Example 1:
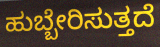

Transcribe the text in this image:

ಹುಬ್ಬೇರಿಸುತ್ತದೆ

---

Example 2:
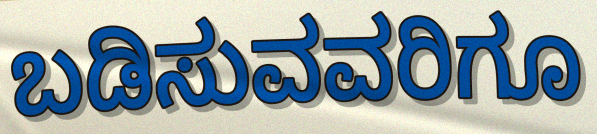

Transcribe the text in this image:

ಬಡಿಸುವವರಿಗೂ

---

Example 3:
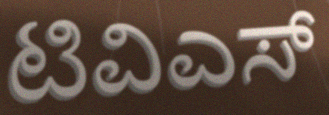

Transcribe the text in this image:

ಟಿವಿಎಸ್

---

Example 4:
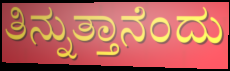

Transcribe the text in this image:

ತಿನ್ನುತ್ತಾನೆಂದು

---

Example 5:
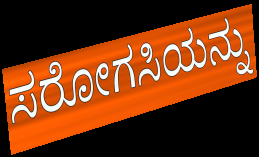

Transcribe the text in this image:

ಸರೋಗಸಿಯನ್ನು